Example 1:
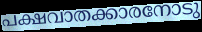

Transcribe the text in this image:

പക്ഷവാതക്കാരനോടു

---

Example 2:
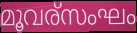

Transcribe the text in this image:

മൂവര്സംഘം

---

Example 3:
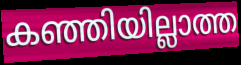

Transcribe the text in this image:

കഞ്ഞിയില്ലാത്ത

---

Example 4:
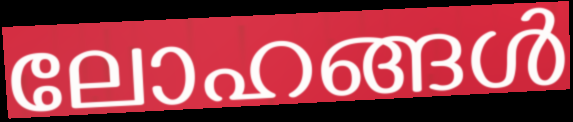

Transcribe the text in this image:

ലോഹങ്ങൾ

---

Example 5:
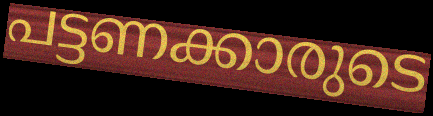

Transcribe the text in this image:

പട്ടണക്കാരുടെ